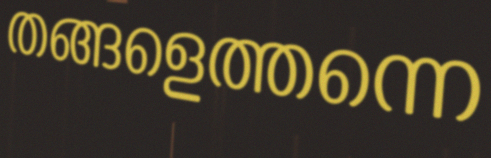
തങ്ങളെത്തന്നെ